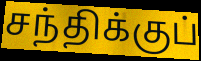
சந்திக்குப்